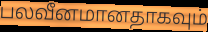
பலவீனமானதாகவும்